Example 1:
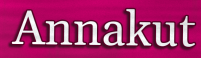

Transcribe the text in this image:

Annakut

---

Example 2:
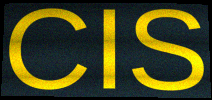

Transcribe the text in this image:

CIS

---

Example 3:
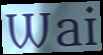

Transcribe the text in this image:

Wai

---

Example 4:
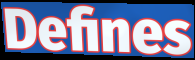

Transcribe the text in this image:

Defines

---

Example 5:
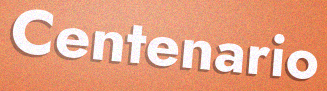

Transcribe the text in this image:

Centenario